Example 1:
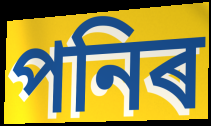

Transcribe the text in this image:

পনিৰ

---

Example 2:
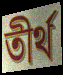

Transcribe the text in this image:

তীৰ্থ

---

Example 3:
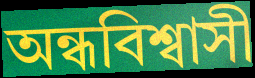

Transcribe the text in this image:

অন্ধবিশ্বাসী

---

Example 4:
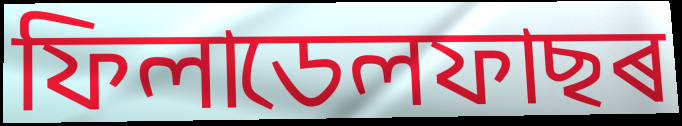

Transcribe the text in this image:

ফিলাডেলফাছৰ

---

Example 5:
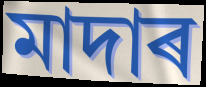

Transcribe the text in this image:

মাদাৰ